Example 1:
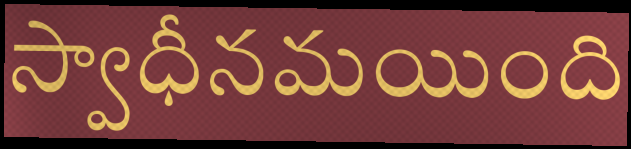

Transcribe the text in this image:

స్వాధీనమయింది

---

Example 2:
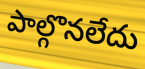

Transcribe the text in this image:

పాల్గొనలేదు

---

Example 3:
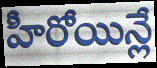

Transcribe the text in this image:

హీరోయిన్లే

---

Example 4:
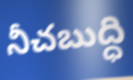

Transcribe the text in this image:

నీచబుద్ధి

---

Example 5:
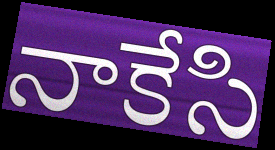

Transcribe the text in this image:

నాకేసి